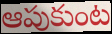
ఆపుకుంట